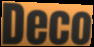
Deco